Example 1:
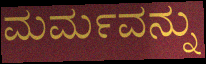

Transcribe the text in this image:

ಮರ್ಮವನ್ನು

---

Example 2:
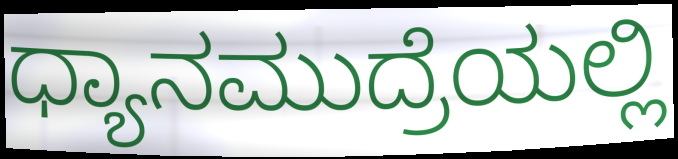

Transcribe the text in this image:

ಧ್ಯಾನಮುದ್ರೆಯಲ್ಲಿ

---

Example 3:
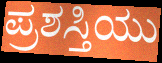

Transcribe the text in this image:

ಪ್ರಶಸ್ತಿಯು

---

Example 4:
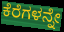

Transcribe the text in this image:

ಕೆರೆಗಳನ್ನೇ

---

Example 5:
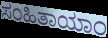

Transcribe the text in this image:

ಸಂಹಿತಾಯಾಂ